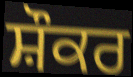
ਸ਼ੌਕਰ